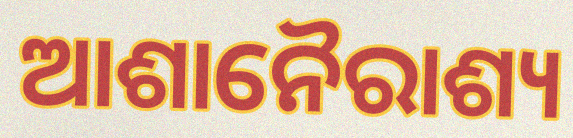
ଆଶାନୈରାଶ୍ୟ